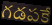
గడపకే